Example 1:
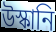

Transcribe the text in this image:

উস্কানি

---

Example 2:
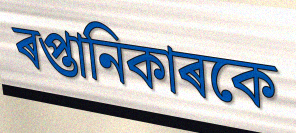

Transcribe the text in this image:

ৰপ্তানিকাৰকে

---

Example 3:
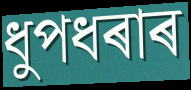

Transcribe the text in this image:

ধুপধৰাৰ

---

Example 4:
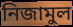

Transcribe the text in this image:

নিজামুল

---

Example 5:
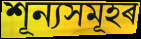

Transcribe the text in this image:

শূন্যসমূহৰ